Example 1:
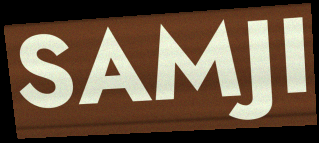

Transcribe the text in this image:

SAMJI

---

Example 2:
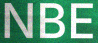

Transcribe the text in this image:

NBE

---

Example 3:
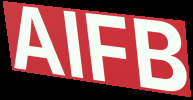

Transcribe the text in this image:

AIFB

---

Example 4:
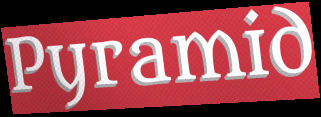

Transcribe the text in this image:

Pyramid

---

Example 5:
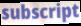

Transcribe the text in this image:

subscript